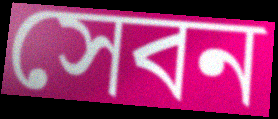
সেবন